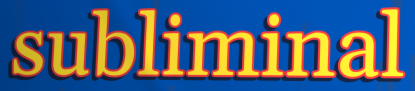
subliminal